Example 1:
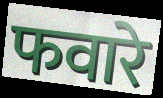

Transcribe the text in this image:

फवारे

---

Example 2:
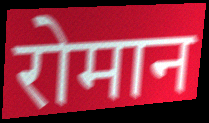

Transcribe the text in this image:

रोमान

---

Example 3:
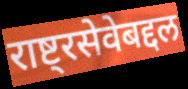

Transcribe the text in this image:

राष्ट्रसेवेबद्दल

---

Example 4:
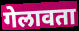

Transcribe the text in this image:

गेलावता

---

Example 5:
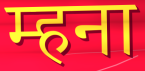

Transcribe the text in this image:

म्हना